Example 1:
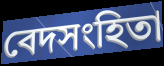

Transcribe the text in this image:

বেদসংহিতা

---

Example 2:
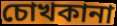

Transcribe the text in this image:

চোখকানা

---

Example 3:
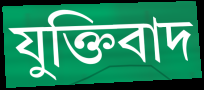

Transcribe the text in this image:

যুক্তিবাদ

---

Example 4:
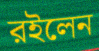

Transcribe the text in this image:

রইলেন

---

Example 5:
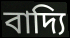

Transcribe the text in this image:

বাদ্যি